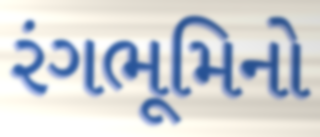
રંગભૂમિનો